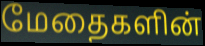
மேதைகளின்